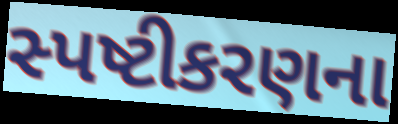
સ્પષ્ટીકરણના